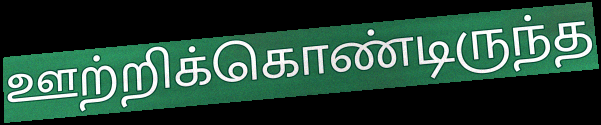
ஊற்றிக்கொண்டிருந்த